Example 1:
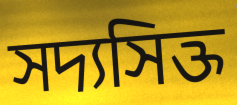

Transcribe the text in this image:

সদ্যসিক্ত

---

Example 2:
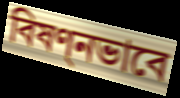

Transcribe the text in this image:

বিষণ্নভাবে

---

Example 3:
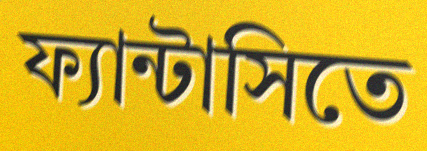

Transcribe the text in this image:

ফ্যান্টাসিতে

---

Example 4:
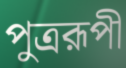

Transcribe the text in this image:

পুত্ররূপী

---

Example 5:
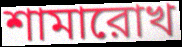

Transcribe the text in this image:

শামারোখ